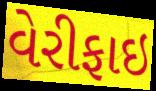
વેરીફાઇ